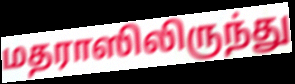
மதராஸிலிருந்து